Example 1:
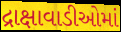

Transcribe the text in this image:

દ્રાક્ષાવાડીઓમાં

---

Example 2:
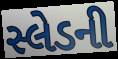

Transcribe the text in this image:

સ્લેડની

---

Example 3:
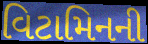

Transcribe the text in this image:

વિટામિનની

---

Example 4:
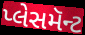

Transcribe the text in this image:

પ્લેસમૅન્ટ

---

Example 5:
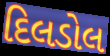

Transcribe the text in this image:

દિલડોલ